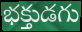
భక్తుడగు